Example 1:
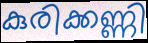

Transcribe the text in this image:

കുരിക്കണ്ണി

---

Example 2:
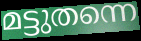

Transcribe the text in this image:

മട്ടുതന്നെ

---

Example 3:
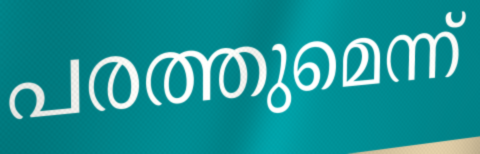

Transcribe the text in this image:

പരത്തുമെന്ന്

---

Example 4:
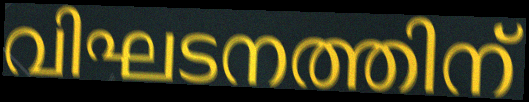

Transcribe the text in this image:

വിഘടനത്തിന്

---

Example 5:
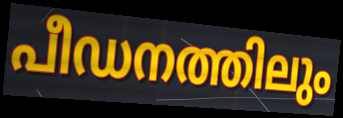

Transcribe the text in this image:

പീഡനത്തിലും